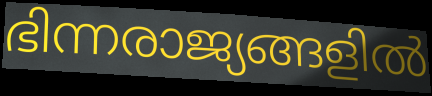
ഭിന്നരാജ്യങ്ങളിൽ